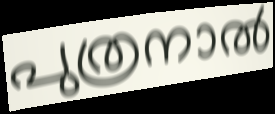
പുത്രനാൽ